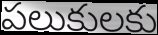
పలుకులకు